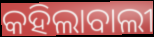
କହିଲାବାଲୀ